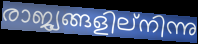
രാജ്യങ്ങളില്നിന്നു